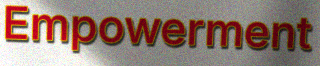
Empowerment